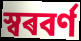
স্বৰবৰ্ণ